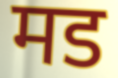
मड